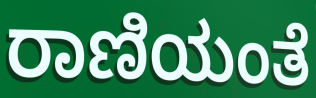
ರಾಣಿಯಂತೆ